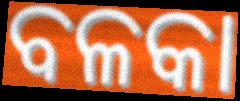
ବଳକା